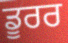
ਡੂਰਰ